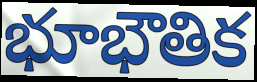
భూభౌతిక